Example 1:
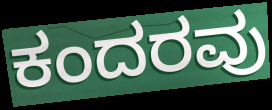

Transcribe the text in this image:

ಕಂದರವು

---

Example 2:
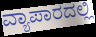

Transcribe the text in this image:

ವ್ಯಾಪಾರದಲ್ಲಿ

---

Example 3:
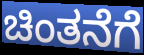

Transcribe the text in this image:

ಚಿಂತನೆಗೆ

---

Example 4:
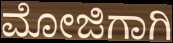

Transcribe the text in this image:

ಮೋಜಿಗಾಗಿ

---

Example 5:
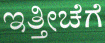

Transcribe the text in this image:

ಇತ್ತೀಚೆಗೆ